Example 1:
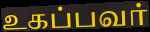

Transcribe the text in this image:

உகப்பவர்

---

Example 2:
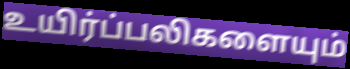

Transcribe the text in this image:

உயிர்ப்பலிகளையும்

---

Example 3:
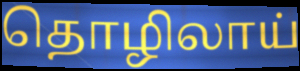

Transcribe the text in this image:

தொழிலாய்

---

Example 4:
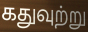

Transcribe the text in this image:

கதுவுற்று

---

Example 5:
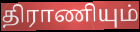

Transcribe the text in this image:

திராணியும்